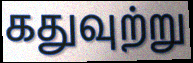
கதுவுற்று